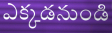
ఎక్కడనుండి